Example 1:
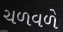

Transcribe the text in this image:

ચળવળે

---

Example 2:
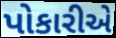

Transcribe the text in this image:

પોકારીએ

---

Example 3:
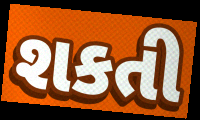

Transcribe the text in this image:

શકતી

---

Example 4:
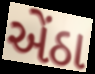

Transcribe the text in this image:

એંઠા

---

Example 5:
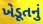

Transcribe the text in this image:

ખેડૂતનું